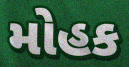
મોહક